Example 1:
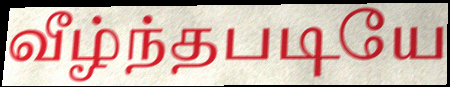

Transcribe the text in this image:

வீழ்ந்தபடியே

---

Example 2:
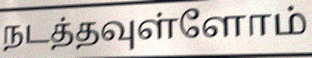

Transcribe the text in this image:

நடத்தவுள்ளோம்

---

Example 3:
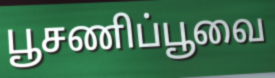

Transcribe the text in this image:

பூசணிப்பூவை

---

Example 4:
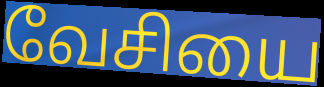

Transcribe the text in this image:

வேசியை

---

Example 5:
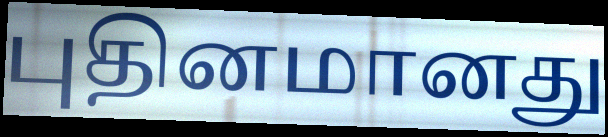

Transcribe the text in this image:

புதினமானது